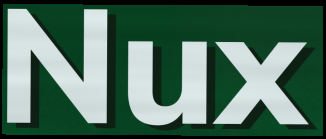
Nux